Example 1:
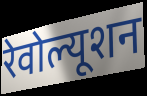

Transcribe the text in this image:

रेवोल्यूशन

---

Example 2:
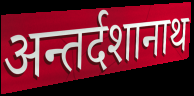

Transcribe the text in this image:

अन्तर्दशानाथ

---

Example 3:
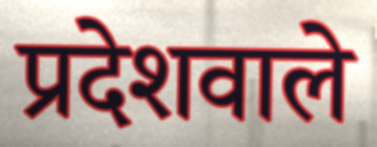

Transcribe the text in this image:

प्रदेशवाले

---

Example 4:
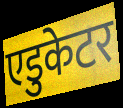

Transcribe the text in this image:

एडुकेटर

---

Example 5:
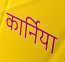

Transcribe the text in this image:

कार्निया